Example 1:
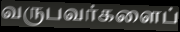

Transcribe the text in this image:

வருபவர்களைப்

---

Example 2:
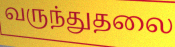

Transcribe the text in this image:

வருந்துதலை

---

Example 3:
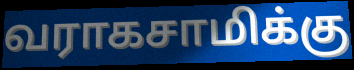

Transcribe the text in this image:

வராகசாமிக்கு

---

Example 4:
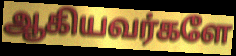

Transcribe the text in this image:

ஆகியவர்களே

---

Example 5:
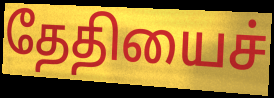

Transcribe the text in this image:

தேதியைச்